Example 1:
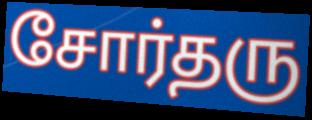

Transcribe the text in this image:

சோர்தரு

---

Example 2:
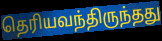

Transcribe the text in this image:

தெரியவந்திருந்தது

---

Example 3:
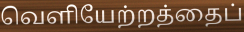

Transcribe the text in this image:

வெளியேற்றத்தைப்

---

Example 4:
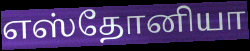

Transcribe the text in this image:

எஸ்தோனியா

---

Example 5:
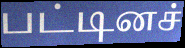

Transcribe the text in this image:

பட்டினச்